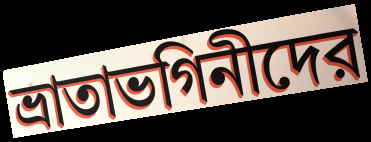
ভ্রাতাভগিনীদের